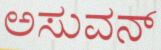
ಅಸುವನ್